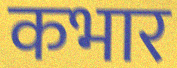
कभार